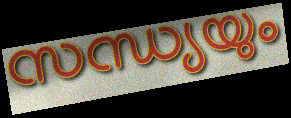
സന്ധ്യയും